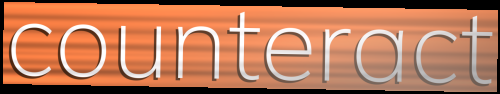
counteract